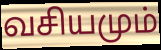
வசியமும்